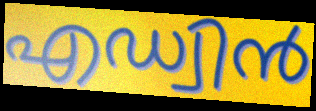
എഡ്വിൻ